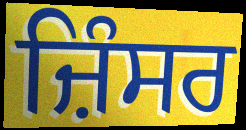
ਜ਼ਿੰਸਰ